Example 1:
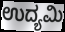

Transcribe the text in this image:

ಉದ್ಯಮಿ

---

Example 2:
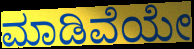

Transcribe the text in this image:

ಮಾಡಿವೆಯೇ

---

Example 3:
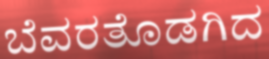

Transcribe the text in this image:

ಬೆವರತೊಡಗಿದ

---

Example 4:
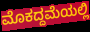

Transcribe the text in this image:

ಮೊಕದ್ದಮೆಯಲ್ಲಿ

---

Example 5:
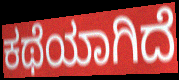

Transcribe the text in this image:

ಕಥೆಯಾಗಿದೆ